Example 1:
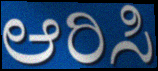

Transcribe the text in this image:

ಆರಿಸಿ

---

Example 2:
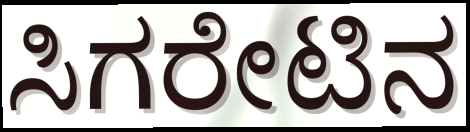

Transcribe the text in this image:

ಸಿಗರೇಟಿನ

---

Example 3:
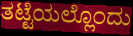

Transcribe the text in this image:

ತಟ್ಟೆಯಲ್ಲೊಂದು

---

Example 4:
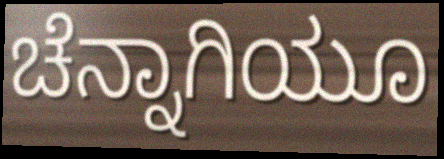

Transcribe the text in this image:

ಚೆನ್ನಾಗಿಯೂ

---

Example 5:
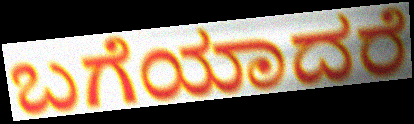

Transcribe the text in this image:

ಬಗೆಯಾದರೆ